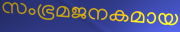
സംഭ്രമജനകമായ